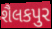
શૈલકપુર